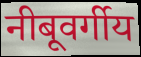
नीबूवर्गीय